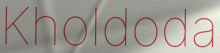
Kholdoda